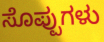
ಸೊಪ್ಪುಗಳು